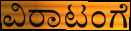
ವಿರಾಟಂಗೆ